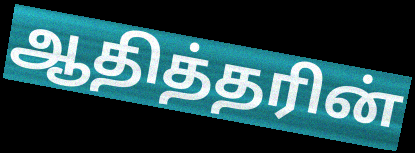
ஆதித்தரின்